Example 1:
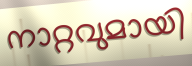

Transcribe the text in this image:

നാറ്റവുമായി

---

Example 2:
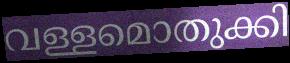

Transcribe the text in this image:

വള്ളമൊതുക്കി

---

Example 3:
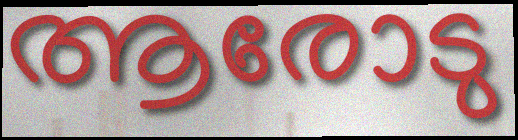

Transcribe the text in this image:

ആരോടു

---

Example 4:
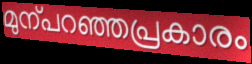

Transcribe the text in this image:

മുന്പറഞ്ഞപ്രകാരം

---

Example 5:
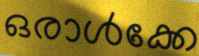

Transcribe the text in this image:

ഒരാൾക്കേ